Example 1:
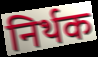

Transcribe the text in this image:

निर्थक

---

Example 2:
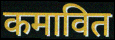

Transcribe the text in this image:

कमावित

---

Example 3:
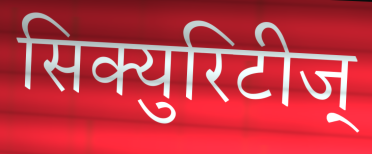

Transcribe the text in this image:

सिक्युरिटीज्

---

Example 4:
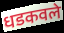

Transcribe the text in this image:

धडकवले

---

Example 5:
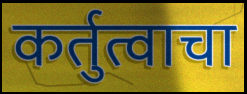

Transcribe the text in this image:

कर्तुत्वाचा